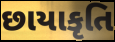
છાયાકૃતિ